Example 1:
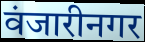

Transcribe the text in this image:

वंजारीनगर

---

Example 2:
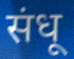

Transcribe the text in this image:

संधू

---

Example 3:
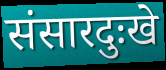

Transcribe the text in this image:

संसारदुःखे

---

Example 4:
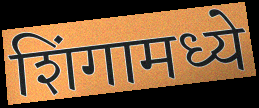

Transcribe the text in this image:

शिंगामध्ये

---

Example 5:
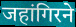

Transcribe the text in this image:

जहांगिरने